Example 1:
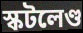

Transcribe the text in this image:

স্কটলেণ্ড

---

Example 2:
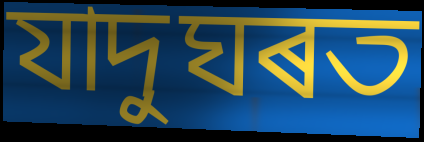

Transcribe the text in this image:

যাদুঘৰত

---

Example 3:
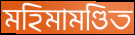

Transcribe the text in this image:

মহিমামণ্ডিত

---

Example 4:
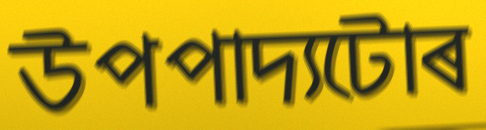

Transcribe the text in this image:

উপপাদ্যটোৰ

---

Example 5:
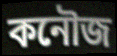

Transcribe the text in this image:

কনৌজ